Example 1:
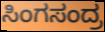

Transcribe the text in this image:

ಸಿಂಗಸಂದ್ರ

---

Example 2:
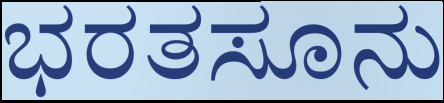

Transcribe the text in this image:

ಭರತಸೂನು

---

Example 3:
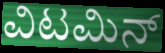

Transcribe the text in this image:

ವಿಟಮಿನ್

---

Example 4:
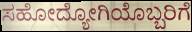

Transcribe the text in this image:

ಸಹೋದ್ಯೋಗಿಯೊಬ್ಬರಿಗೆ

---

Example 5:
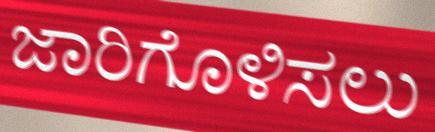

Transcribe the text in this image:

ಜಾರಿಗೊಳಿಸಲು